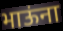
भाऊंना